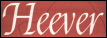
Heever